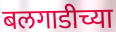
बलगाडीच्या